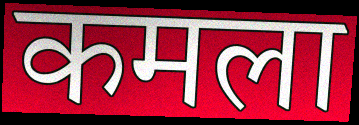
कमला